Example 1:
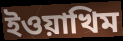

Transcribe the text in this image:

ইওয়াখিম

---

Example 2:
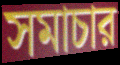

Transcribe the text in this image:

সমাচার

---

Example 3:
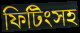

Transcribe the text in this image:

ফিটিংসহ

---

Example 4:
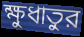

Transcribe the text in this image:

ক্ষুধাতুর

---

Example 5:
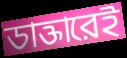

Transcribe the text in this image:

ডাক্তারেই